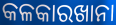
କଳକାରଖାନା